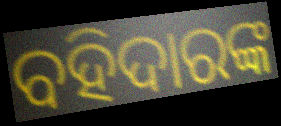
ବହିଦାରଙ୍କ